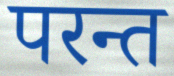
परन्त